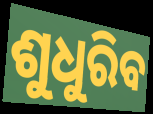
ଶୁଧୁରିବ